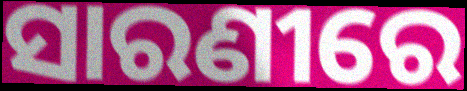
ସାରଣୀରେ